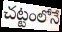
చట్టంలోనే